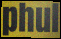
phul